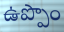
ఉప్పొం